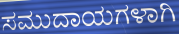
ಸಮುದಾಯಗಳಾಗಿ